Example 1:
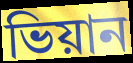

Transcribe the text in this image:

ভিয়ান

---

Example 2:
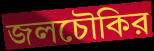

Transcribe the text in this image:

জলচৌকির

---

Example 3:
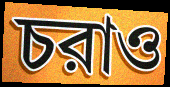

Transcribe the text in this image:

চরাও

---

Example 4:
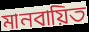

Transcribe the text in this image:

মানবায়িত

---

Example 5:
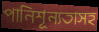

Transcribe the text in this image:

পানিশূন্যতাসহ